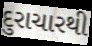
દુરાચારથી